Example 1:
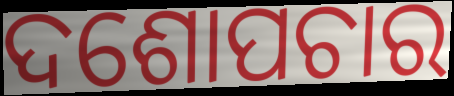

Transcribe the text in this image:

ଦଶୋପଚାର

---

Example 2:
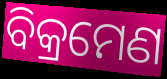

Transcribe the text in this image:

ବିକ୍ରମେଣ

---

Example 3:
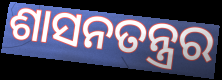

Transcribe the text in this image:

ଶାସନତନ୍ତ୍ରର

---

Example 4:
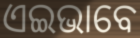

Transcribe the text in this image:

ଏଇଭାବେ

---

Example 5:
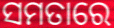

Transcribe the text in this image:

ସମତାରେ